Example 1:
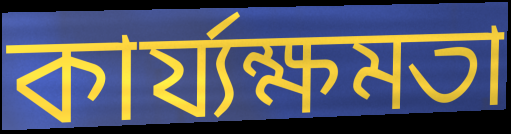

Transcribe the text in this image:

কাৰ্য্যক্ষমতা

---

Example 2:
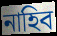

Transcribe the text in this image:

নাহিব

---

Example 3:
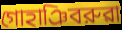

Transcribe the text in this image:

গোহাঞিবৰুৱা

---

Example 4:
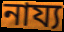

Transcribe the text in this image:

নায্য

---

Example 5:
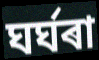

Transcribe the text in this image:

ঘৰ্ঘৰা